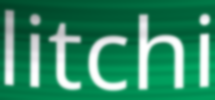
litchi